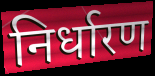
निर्धारण